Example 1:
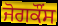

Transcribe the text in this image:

ਜੋਗਕੌਂਸ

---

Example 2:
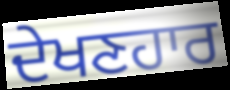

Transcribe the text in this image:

ਦੇਖਣਹਾਰ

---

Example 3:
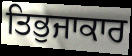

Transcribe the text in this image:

ਤਿਭੁਜਾਕਾਰ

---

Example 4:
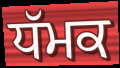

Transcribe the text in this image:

ਧੱਮਕ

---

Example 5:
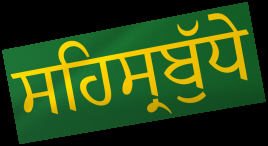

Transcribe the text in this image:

ਸਹਿਸ੍ਰਬੁੱਧੇ